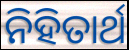
ନିହିତାର୍ଥ